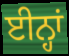
ਈਨ੍ਹਾਂ